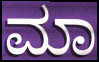
ಮಾ